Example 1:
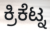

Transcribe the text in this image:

ಕ್ರಿಕೆಟ್ನ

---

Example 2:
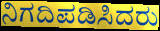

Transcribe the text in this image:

ನಿಗದಿಪಡಿಸಿದರು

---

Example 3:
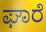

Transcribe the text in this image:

ಘಾರೆ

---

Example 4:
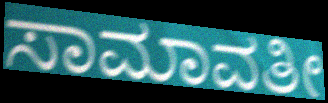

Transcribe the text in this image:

ಸಾಮಾವತೀ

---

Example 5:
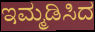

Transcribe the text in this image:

ಇಮ್ಮಡಿಸಿದ